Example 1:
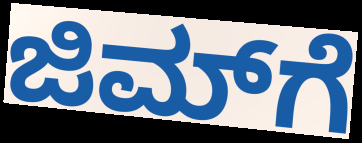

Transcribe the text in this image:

ಜಿಮ್‌ಗೆ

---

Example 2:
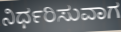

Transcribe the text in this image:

ನಿರ್ಧರಿಸುವಾಗ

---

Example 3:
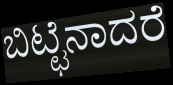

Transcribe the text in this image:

ಬಿಟ್ಟೆನಾದರೆ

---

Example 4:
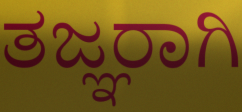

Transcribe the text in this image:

ತಜ್ಞರಾಗಿ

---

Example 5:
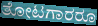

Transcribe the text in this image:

ತೋಟಗಾರರೂ